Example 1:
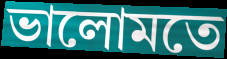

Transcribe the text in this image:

ভালোমতে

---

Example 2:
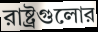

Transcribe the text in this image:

রাষ্ট্রগুলোর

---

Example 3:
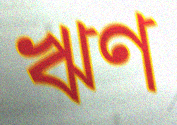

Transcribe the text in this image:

ঋণ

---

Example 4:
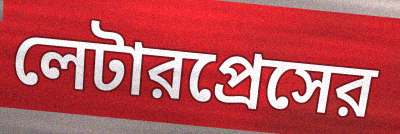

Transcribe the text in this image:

লেটারপ্রেসের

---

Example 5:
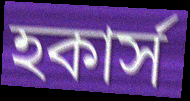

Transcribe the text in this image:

হকার্স